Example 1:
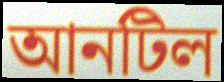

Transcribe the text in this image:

আনটিল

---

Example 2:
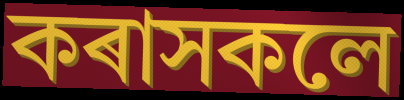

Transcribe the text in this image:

কৰাসকলে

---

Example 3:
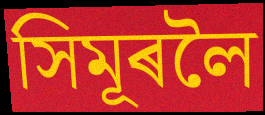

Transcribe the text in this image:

সিমূৰলৈ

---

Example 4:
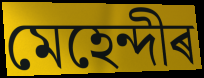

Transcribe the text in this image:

মেহেন্দীৰ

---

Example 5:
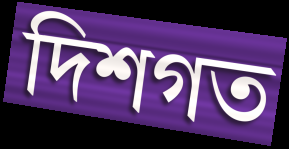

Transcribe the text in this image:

দিশগত